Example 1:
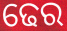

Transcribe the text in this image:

ଢେର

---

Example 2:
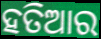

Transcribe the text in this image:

ହତିଆର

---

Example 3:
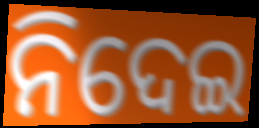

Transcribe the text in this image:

ନିଦେଇ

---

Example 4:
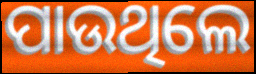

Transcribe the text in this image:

ପାଉଥିଲେ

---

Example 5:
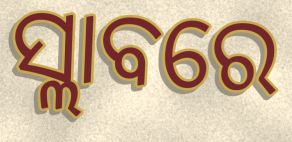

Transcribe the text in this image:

ସ୍ଲାବରେ